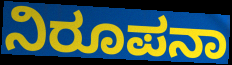
ನಿರೂಪನಾ